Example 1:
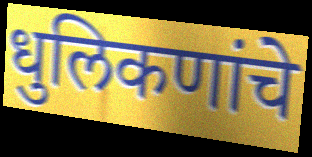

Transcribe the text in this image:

धुलिकणांचे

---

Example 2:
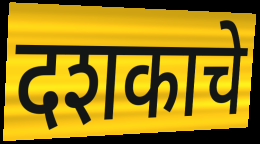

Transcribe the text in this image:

दशकाचे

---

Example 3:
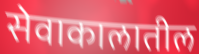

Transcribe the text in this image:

सेवाकालातील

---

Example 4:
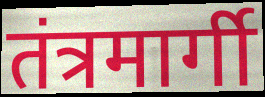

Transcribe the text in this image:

तंत्रमार्गी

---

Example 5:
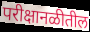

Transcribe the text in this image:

परीक्षानळीतील